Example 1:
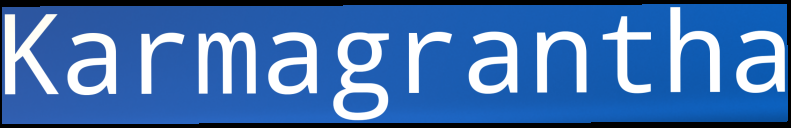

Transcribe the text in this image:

Karmagrantha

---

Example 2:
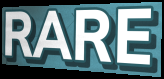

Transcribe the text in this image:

RARE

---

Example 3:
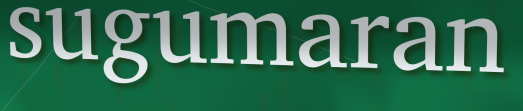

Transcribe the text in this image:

sugumaran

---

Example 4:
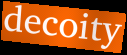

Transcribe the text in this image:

decoity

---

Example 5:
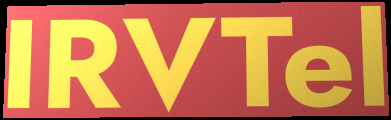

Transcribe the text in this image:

IRVTel